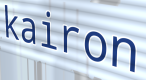
kairon